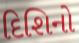
દિશિનો